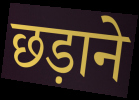
छड़ाने